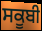
ਸਕੂਬੀ